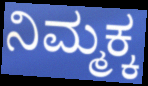
ನಿಮ್ಮಕ್ಕ